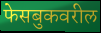
फेसबुकवरील